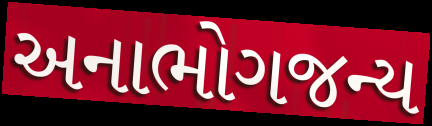
અનાભોગજન્ય